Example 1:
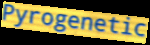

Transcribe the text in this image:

Pyrogenetic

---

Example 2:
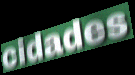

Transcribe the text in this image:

cidades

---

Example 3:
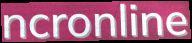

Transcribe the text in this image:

ncronline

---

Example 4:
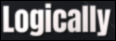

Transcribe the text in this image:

Logically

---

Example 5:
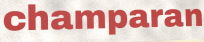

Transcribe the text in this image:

champaran